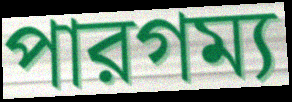
পারগম্য